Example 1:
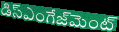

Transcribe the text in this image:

డిస్ఎంగేజ్‌మెంట్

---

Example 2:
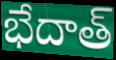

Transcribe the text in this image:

భేదాత్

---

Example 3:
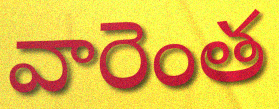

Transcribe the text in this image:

వారెంత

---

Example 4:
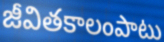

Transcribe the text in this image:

జీవితకాలంపాటు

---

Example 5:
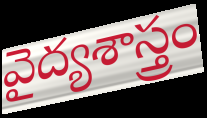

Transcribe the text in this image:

వైద్యశాస్త్రం